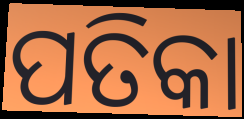
ପତିକା